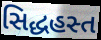
સિદ્ધહસ્ત